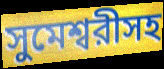
সুমেশ্বরীসহ